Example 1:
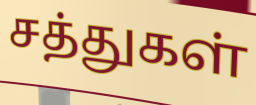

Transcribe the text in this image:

சத்துகள்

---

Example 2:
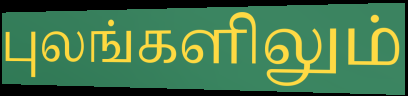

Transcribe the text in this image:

புலங்களிலும்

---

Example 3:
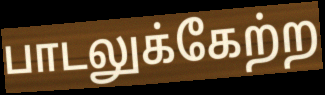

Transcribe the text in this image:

பாடலுக்கேற்ற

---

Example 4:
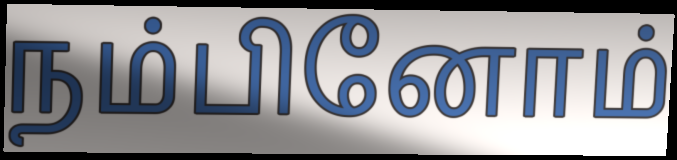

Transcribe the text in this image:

நம்பினோம்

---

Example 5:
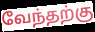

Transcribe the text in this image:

வேந்தற்கு